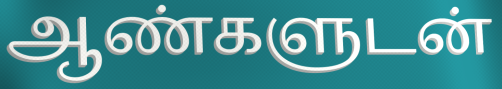
ஆண்களுடன்